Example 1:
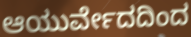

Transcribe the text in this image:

ಆಯುರ್ವೇದದಿಂದ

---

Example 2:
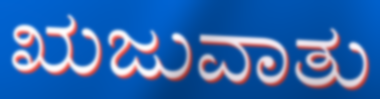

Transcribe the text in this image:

ಋಜುವಾತು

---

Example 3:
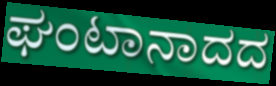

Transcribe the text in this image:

ಘಂಟಾನಾದದ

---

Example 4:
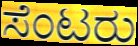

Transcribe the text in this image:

ಸೆಂಟರು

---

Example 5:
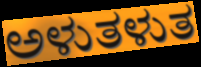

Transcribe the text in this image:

ಅಳುತಳುತ